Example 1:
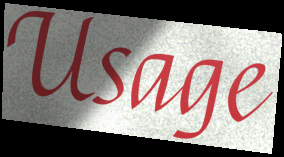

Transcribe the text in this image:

Usage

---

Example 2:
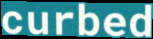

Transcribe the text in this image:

curbed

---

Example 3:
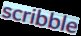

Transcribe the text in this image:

scribble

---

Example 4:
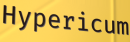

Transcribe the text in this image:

Hypericum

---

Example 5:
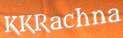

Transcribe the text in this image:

KKRachna